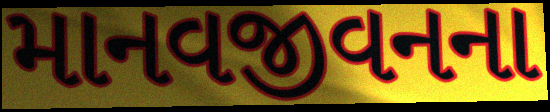
માનવજીવનના